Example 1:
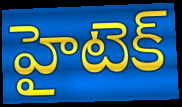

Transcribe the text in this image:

హైటెక్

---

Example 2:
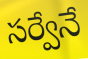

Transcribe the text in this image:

సర్వేనే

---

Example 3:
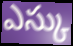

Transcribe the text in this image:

ఎస్కు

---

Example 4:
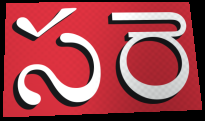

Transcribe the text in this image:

సరె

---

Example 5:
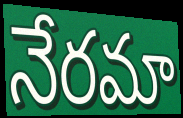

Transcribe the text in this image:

నేరమా